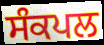
ਸੰਕਪਲ